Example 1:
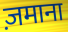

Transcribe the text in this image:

ज़माना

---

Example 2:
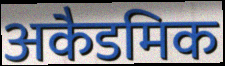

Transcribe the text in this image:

अकैडमिक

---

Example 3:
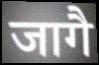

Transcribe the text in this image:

जागै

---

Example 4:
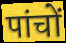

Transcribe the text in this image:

पांचों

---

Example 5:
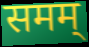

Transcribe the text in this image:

समम्